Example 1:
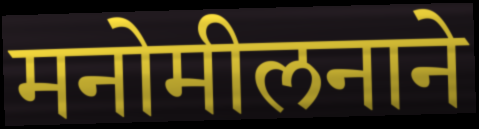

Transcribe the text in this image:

मनोमीलनाने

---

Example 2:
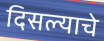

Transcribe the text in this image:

दिसल्याचे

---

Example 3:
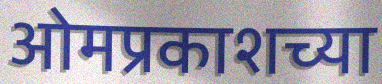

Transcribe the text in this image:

ओमप्रकाशच्या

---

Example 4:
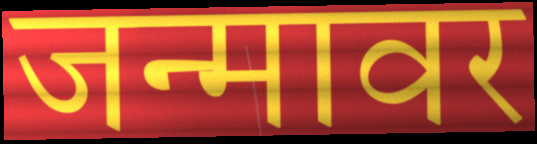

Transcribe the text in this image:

जन्मावर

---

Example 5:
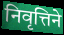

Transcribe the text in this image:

निवृत्तिने